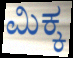
ಮಿಕ್ಕ